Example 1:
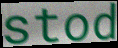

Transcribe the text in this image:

stod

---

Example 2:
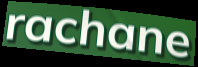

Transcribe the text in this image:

rachane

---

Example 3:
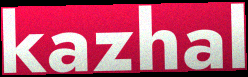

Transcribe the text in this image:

kazhal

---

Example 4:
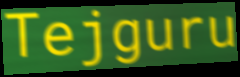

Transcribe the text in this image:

Tejguru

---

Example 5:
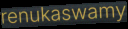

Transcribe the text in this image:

renukaswamy